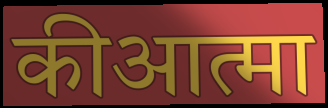
कीआत्मा